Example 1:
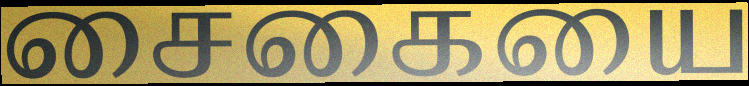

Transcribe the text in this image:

சைகையை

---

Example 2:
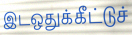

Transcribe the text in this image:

இடஒதுக்கீட்டுச்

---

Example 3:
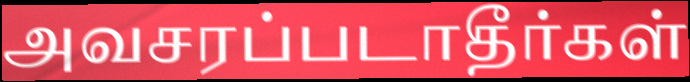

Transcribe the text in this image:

அவசரப்படாதீர்கள்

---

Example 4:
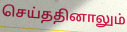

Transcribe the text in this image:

செய்ததினாலும்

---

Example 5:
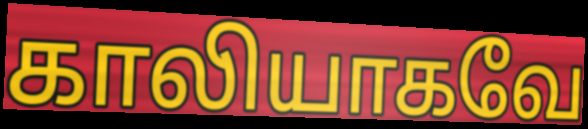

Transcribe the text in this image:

காலியாகவே